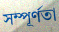
সম্পূর্ণতা